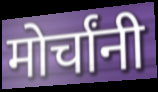
मोर्चांनी